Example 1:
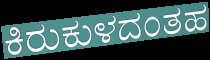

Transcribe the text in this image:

ಕಿರುಕುಳದಂತಹ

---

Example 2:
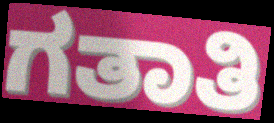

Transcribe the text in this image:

ಗತಾತಿ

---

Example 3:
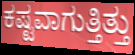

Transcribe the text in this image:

ಕಷ್ಟವಾಗುತ್ತಿತ್ತು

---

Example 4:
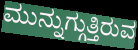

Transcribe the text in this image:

ಮುನ್ನುಗ್ಗುತ್ತಿರುವ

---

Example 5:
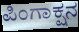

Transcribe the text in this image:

ಪಿಂಗಾಕ್ಷನ